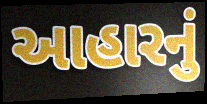
આહારનું